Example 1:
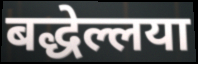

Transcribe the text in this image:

बद्धेल्लया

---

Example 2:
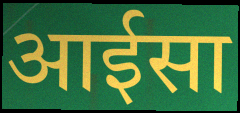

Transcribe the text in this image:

आईसा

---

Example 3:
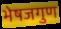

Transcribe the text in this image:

भेषजगुण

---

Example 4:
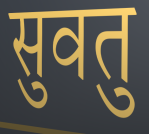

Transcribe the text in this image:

सुवतु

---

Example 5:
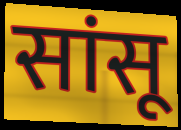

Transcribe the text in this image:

सांसू